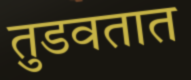
तुडवतात